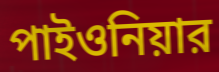
পাইওনিয়ার